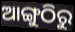
ଆଙ୍ଗୁଠିରୁ